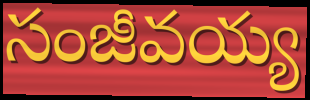
సంజీవయ్య